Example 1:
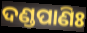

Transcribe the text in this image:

ଦଣ୍ଡପାଣିଃ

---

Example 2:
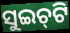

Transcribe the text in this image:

ସୁଇଚ୍‌ଟି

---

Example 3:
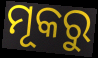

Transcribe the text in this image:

ମୂକରୁ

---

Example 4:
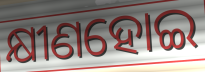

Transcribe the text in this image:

କ୍ଷୀଣହୋଇ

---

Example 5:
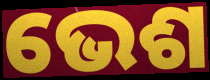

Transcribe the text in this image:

ଭେଶ